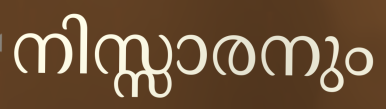
നിസ്സാരനും